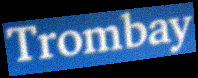
Trombay